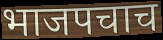
भाजपचाच